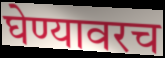
घेण्यावरच